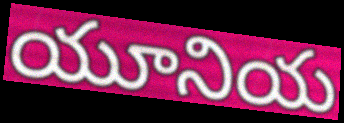
యూనియ